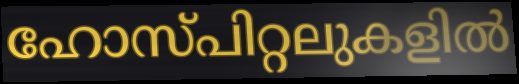
ഹോസ്പിറ്റലുകളിൽ